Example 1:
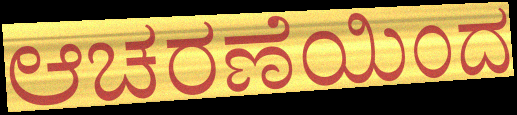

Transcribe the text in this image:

ಆಚರಣೆಯಿಂದ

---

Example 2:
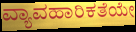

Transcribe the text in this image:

ವ್ಯಾವಹಾರಿಕತೆಯೇ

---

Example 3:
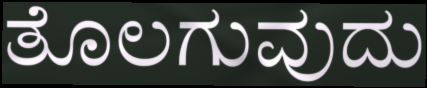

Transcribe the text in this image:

ತೊಲಗುವುದು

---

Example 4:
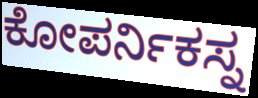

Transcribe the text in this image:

ಕೋಪರ್ನಿಕಸ್ನ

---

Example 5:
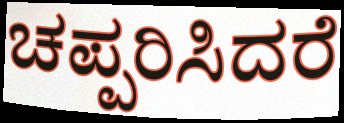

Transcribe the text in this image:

ಚಪ್ಪರಿಸಿದರೆ